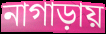
নাগাড়ায়